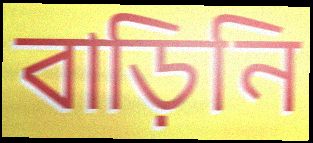
বাড়িনি